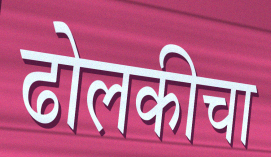
ढोलकीचा